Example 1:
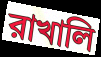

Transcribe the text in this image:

রাখালি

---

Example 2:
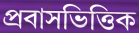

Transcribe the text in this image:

প্রবাসভিত্তিক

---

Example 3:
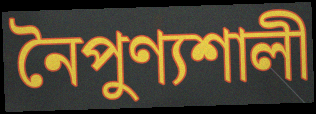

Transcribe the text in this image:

নৈপুণ্যশালী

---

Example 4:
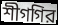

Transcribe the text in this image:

শীগগির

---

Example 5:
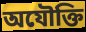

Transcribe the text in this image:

অযৌক্তি